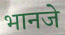
भानजे